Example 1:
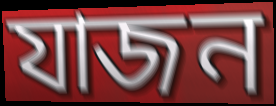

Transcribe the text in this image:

যাজন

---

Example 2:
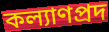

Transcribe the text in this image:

কল্যাণপ্রদ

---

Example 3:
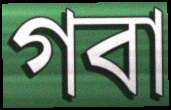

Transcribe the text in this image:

গবা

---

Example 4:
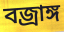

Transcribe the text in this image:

বজ্রাঙ্গ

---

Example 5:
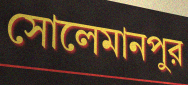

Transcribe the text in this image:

সোলেমানপুর